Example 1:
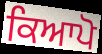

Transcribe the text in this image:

ਕਿਆਪੋ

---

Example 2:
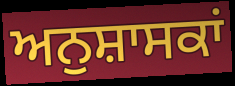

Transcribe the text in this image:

ਅਨੁਸ਼ਾਸਕਾਂ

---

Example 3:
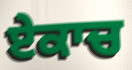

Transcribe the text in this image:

ਏਕਾਚ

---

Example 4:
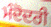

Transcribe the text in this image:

ਮੰਦੋਦਰੀ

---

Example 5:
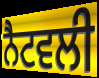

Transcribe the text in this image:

ਨੈਟਵਲੀ